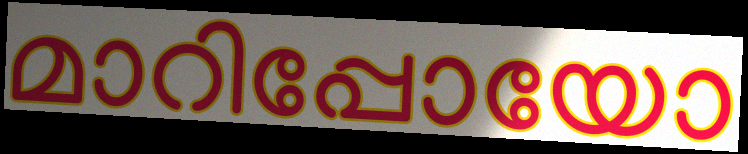
മാറിപ്പോയോ